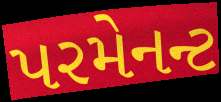
પરમેનન્ટ